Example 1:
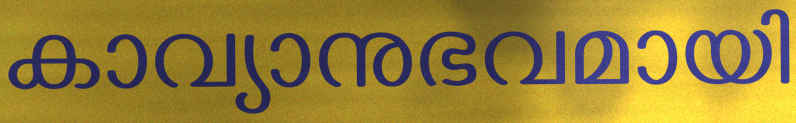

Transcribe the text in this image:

കാവ്യാനുഭവമായി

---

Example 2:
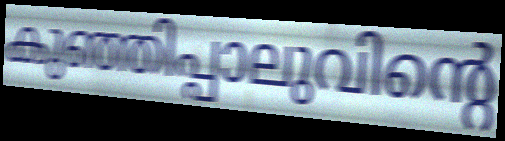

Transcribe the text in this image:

കുഞ്ഞിപ്പാലുവിന്റെ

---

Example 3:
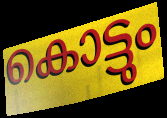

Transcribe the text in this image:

കൊട്ടും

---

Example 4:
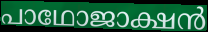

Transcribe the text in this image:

പാഥോജാക്ഷൻ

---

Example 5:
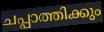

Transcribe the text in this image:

ചപ്പാത്തിക്കും